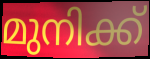
മുനിക്ക്